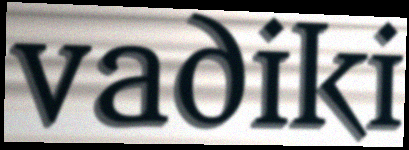
vadiki